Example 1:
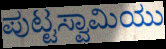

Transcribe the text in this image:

ಪುಟ್ಟಸ್ವಾಮಿಯು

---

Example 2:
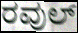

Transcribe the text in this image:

ರವುಲ್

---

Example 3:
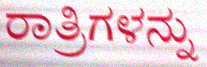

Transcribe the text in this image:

ರಾತ್ರಿಗಳನ್ನು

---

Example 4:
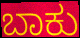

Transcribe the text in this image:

ಬಾಕು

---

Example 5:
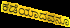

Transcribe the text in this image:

ಕಡೆಯಾದವನೂ